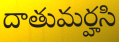
దాతుమర్హసి